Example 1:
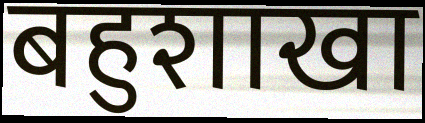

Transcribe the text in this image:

बहुशाखा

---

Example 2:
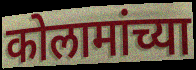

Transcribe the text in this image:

कोलामांच्या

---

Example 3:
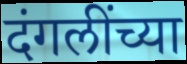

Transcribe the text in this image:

दंगलींच्या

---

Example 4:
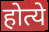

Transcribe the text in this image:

होत्ये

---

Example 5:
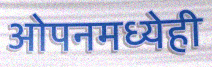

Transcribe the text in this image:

ओपनमध्येही